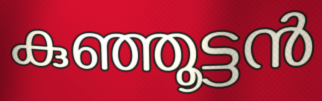
കുഞ്ഞൂട്ടൻ